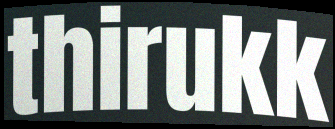
thirukk